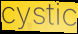
cystic